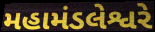
મહામંડલેશ્વરે